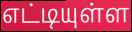
எட்டியுள்ள